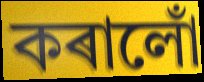
কৰালোঁ